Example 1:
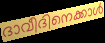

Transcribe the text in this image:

ദാവീദിനെക്കാൾ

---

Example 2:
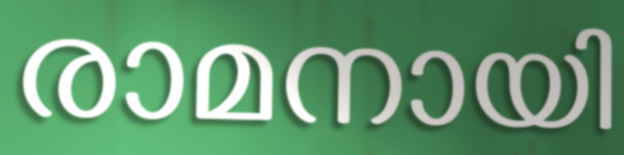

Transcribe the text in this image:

രാമനായി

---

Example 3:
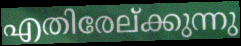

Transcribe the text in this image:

എതിരേല്ക്കുന്നു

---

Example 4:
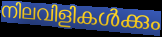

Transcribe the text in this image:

നിലവിളികൾക്കും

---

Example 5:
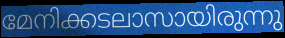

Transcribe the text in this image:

മേനിക്കടലാസായിരുന്നു